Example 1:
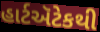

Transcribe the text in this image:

હાર્ટઍટેકથી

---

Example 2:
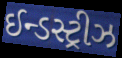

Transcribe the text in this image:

ઈન્ડસ્ટ્રીઝ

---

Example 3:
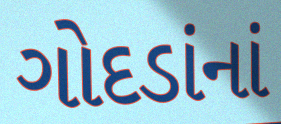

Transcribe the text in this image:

ગોદડાંનાં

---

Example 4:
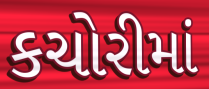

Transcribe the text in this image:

કચોરીમાં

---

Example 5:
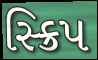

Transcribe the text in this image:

સ્ક્રિપ